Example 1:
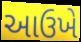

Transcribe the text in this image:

આઉખે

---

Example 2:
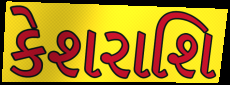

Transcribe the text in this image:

કેશરાશિ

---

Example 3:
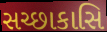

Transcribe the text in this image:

સચ્છાકાસિ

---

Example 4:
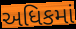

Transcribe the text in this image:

અધિકમાં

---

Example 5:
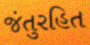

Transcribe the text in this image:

જંતુરહિત